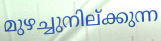
മുഴച്ചുനില്ക്കുന്ന